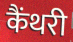
कैंथरी